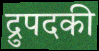
द्रुपदकी